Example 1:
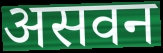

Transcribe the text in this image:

असवन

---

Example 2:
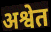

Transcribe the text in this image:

अश्वेत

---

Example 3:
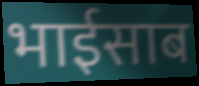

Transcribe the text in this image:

भाईसाब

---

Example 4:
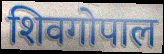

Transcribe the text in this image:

शिवगोपाल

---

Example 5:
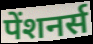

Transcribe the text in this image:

पेंशनर्स